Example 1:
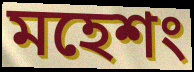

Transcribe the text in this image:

মহেশং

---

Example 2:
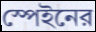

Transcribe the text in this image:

স্পেইনের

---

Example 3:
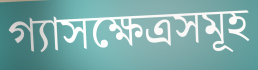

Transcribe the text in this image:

গ্যাসক্ষেত্রসমূহ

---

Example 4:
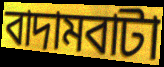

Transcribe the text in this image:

বাদামবাটা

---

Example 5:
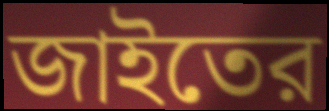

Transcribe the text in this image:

জাইতের